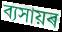
ব্যসায়ৰ